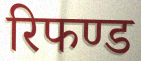
रिफण्ड